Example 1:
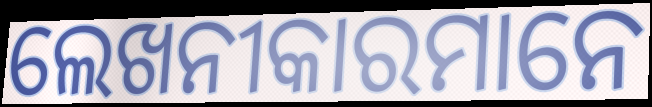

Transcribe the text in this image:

ଲେଖନୀକାରମାନେ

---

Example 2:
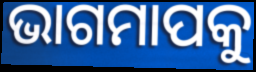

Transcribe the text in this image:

ଭାଗମାପକୁ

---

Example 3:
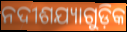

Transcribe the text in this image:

ନଦୀଶଯ୍ୟାଗୁଡ଼ିକ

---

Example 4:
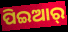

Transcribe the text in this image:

ପିଇଆର୍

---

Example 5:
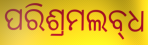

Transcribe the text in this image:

ପରିଶ୍ରମଲବ୍‍ଧ